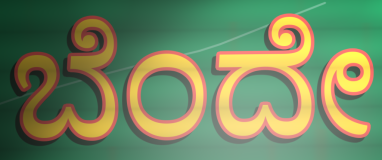
ಬೆಂದೇ